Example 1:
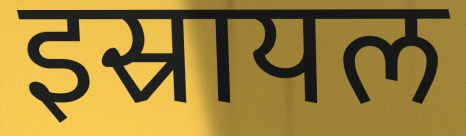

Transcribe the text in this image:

इस्रायल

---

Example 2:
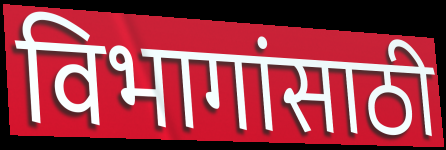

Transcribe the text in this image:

विभागांसाठी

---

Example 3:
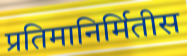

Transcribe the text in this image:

प्रतिमानिर्मितीस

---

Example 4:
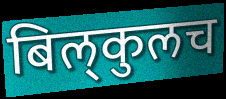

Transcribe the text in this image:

बिल्कुलच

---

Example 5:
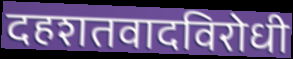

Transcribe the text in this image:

दहशतवादविरोधी